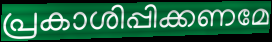
പ്രകാശിപ്പിക്കണമേ